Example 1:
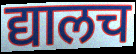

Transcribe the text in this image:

द्यालच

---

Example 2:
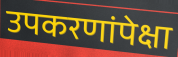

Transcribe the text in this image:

उपकरणांपेक्षा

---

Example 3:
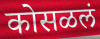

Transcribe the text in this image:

कोसळलं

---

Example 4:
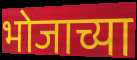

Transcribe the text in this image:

भोजाच्या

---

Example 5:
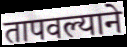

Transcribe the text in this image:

तापवल्याने